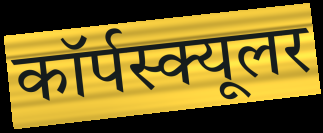
कॉर्पस्क्यूलर